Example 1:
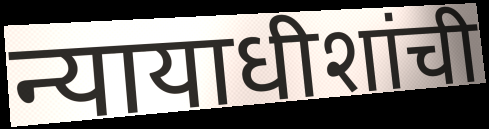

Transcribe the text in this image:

न्यायाधीशांची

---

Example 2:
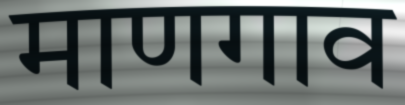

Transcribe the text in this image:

माणगाव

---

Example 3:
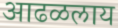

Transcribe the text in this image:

आढळलाय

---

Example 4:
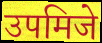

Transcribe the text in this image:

उपमिजे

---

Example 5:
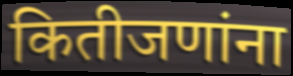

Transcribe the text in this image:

कितीजणांना